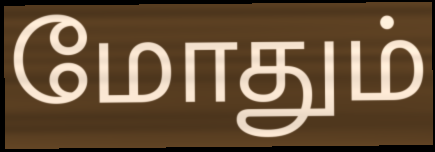
மோதும்